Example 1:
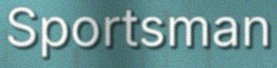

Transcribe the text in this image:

Sportsman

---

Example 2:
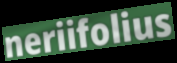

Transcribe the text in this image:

neriifolius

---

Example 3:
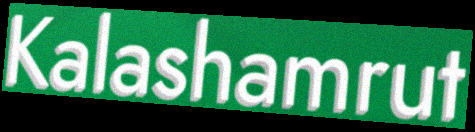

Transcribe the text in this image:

Kalashamrut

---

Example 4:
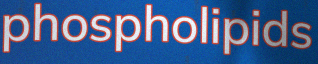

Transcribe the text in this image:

phospholipids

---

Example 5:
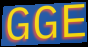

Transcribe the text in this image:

GGE